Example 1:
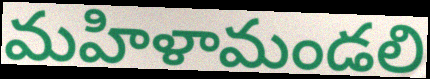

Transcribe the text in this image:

మహిళామండలి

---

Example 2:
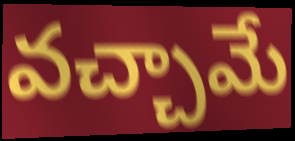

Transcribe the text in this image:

వచ్చామే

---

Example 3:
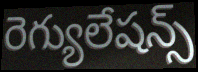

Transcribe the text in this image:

రెగ్యులేషన్స్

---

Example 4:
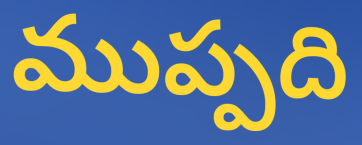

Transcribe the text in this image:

ముప్పది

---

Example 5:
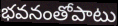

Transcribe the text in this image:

భవనంతోపాటు